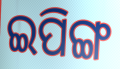
ଇପିଙ୍ଗ